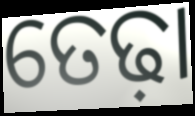
ତେଢ଼ା